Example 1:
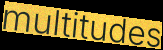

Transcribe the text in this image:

multitudes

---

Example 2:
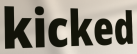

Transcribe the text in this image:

kicked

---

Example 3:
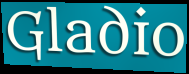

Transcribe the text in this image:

Gladio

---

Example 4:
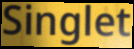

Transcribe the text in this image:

Singlet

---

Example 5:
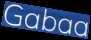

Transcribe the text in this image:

Gabaa